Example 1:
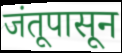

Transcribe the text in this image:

जंतूपासून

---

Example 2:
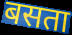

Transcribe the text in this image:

बसता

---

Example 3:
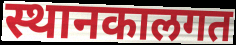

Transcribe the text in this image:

स्थानकालगत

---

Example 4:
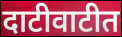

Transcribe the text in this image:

दाटीवाटीत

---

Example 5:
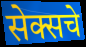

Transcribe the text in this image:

सेक्सचे